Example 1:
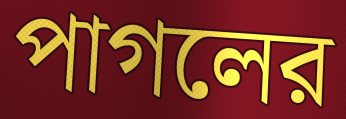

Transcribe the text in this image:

পাগলের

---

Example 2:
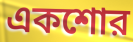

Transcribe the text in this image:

একশোর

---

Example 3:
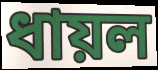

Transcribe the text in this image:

ধায়ল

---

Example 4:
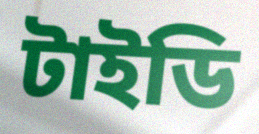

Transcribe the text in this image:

টাইডি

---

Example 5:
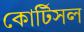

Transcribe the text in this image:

কোর্টিসল